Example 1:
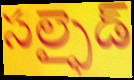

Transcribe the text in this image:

సల్ఫైడ్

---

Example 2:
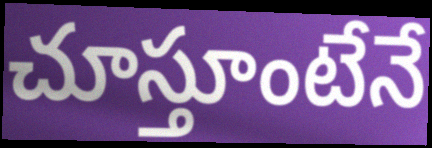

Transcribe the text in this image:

చూస్తూంటేనే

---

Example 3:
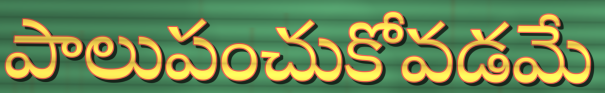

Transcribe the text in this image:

పాలుపంచుకోవడమే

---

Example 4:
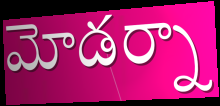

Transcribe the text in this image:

మోడర్నా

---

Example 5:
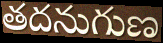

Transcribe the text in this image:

తదనుగుణ